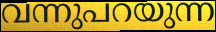
വന്നുപറയുന്ന